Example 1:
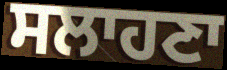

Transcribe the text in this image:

ਸਲਾਹਣਾ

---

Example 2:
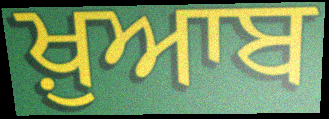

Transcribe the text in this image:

ਖ਼ੁਆਬ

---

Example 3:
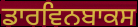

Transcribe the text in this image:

ਡਾਰਵਿਨਬਾਕਸ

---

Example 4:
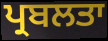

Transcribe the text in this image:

ਪ੍ਰਬਲਤਾ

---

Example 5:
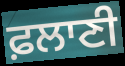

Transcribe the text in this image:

ਫ਼ਲਾਣੀ